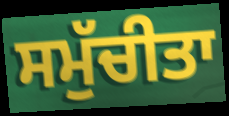
ਸਮੁੱਚੀਤਾ